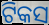
ଟିକସ